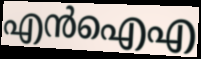
എൻഐഎ